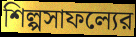
শিল্পসাফল্যের